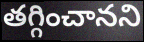
తగ్గించానని